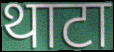
थाटा